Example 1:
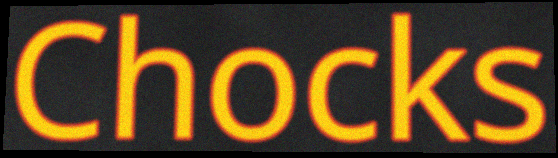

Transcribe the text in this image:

Chocks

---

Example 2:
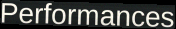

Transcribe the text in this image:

Performances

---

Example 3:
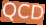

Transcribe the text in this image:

QCD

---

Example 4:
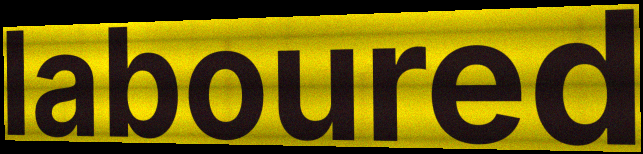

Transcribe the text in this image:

laboured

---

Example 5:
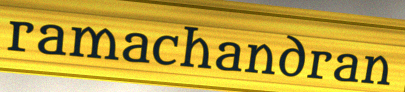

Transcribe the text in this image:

ramachandran